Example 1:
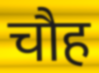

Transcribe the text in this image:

चौह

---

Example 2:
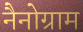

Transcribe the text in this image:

नैनोग्राम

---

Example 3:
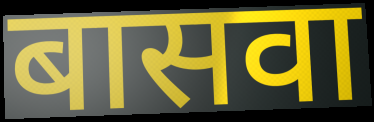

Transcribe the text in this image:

बासवा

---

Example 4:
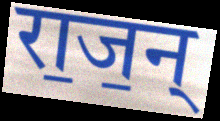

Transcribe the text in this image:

रा॒ज॒न्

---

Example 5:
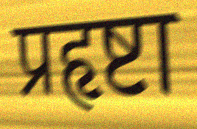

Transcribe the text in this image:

प्रहृष्टा